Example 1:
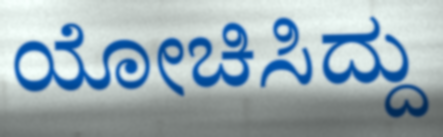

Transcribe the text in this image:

ಯೋಚಿಸಿದ್ದು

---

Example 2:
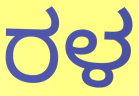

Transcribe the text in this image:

ರಳ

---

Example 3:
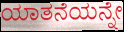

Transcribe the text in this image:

ಯಾತನೆಯನ್ನೇ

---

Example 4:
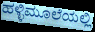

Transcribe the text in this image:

ಹಳ್ಳಿಮೂಲೆಯಲ್ಲಿ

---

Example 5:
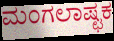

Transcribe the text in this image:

ಮಂಗಲಾಷ್ಟಕ